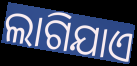
ଲାଗିଯାଏ